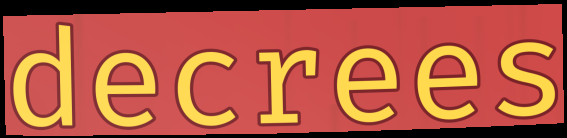
decrees